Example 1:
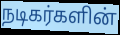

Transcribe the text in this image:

நடிகர்களின்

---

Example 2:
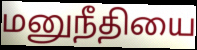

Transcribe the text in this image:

மனுநீதியை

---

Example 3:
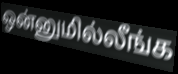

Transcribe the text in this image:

ஒன்னுமில்லீங்க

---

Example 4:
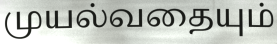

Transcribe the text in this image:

முயல்வதையும்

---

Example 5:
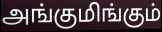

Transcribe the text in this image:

அங்குமிங்கும்